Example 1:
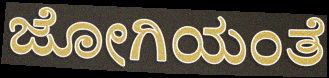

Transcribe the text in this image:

ಜೋಗಿಯಂತೆ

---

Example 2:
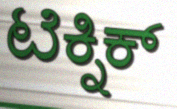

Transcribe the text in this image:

ಟೆಕ್ನಿಕ್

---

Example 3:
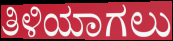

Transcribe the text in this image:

ತಿಳಿಯಾಗಲು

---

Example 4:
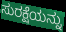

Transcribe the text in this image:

ಸುರಕ್ಷೆಯನ್ನು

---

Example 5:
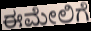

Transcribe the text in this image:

ಈಮೇಲಿಗೆ